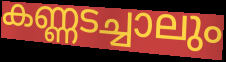
കണ്ണടച്ചാലും